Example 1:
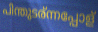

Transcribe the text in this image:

പിന്തുടര്ന്നപ്പോള്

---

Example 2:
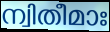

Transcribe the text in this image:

ന്വിതീമാഃ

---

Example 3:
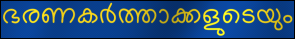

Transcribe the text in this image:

ഭരണകർത്താക്കളുടെയും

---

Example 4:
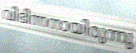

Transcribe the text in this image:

വിഭിന്നനായിരുന്നു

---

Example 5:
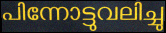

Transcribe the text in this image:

പിന്നോട്ടുവലിച്ചു